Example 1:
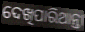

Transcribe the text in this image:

ଦେଖିପାରିଥାନ୍ତା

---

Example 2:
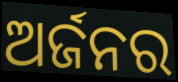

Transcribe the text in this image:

ଅର୍ଜନର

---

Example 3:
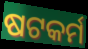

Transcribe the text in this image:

ଷଟକର୍ମ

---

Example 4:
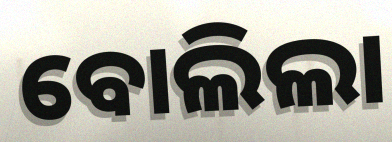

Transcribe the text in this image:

ବୋଲିଲା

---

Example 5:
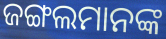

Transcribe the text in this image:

ଜଙ୍ଗଲମାନଙ୍କ